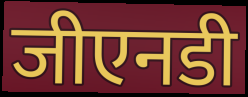
जीएनडी